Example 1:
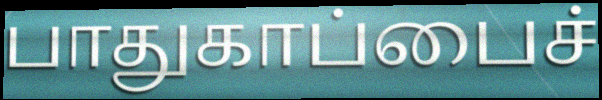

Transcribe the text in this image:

பாதுகாப்பைச்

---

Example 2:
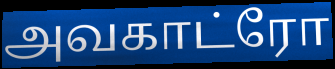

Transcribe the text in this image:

அவகாட்ரோ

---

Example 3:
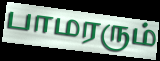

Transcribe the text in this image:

பாமரரும்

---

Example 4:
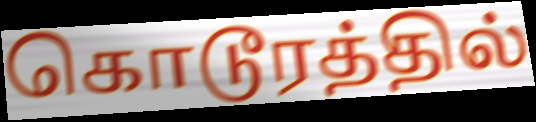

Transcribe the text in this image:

கொடூரத்தில்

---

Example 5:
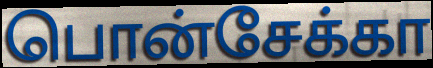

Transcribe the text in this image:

பொன்சேக்கா